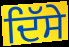
ਦਿੱਸੇ